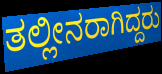
ತಲ್ಲೀನರಾಗಿದ್ದರು